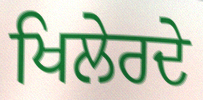
ਖਿਲੇਰਦੇ